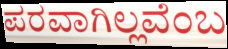
ಪರವಾಗಿಲ್ಲವೆಂಬ